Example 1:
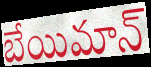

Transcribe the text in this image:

బేయిమాన్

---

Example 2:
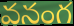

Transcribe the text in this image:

వనంగ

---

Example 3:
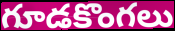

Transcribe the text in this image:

గూడకొంగలు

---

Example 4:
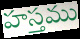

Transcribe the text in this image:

హస్తము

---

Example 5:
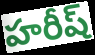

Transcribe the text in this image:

హరీష్